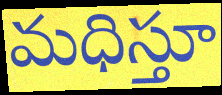
మధిస్తూ